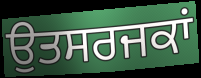
ਉਤਸਰਜਕਾਂ